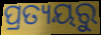
ପ୍ରତ୍ୟୟରୁ